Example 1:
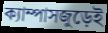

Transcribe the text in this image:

ক্যাম্পাসজুড়েই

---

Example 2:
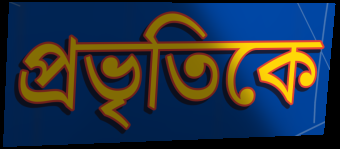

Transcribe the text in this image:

প্রভৃতিকে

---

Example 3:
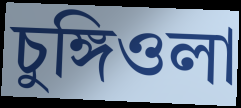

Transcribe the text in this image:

চুঙ্গিওলা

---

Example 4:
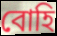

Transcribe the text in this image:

বোহি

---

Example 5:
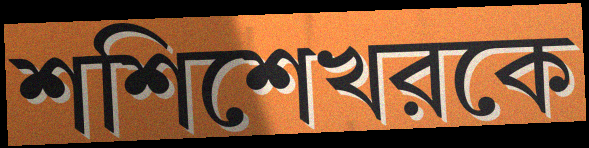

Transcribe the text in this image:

শশিশেখরকে